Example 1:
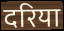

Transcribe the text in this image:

दरिया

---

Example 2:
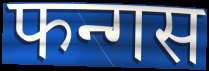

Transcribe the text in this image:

फन्गस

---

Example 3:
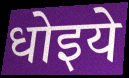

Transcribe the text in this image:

धोइये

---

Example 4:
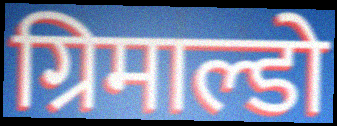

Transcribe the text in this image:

ग्रिमाल्डो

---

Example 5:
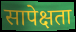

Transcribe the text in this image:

सापेक्षता